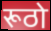
रूठो